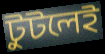
টুটলেই